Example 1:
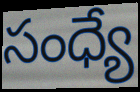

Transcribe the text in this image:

సంధ్యే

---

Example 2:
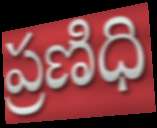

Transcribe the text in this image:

ప్రణిధి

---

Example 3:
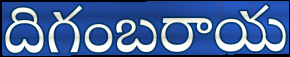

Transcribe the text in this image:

దిగంబరాయ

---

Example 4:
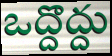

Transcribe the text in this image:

ఒద్దొద్దు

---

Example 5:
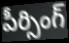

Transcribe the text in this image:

పీర్సింగ్